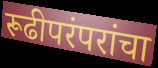
रूढीपरंपरांचा